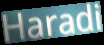
Haradi